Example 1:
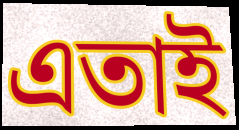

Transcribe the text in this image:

এতাই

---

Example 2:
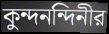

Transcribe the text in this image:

কুন্দনন্দিনীর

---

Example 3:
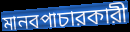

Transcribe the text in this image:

মানবপাচারকারী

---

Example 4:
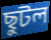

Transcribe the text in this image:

ছুটল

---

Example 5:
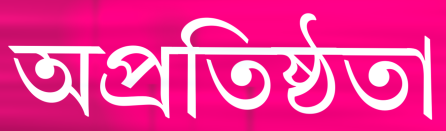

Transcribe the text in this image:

অপ্রতিষ্ঠতা